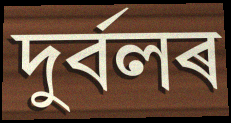
দুৰ্বলৰ